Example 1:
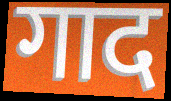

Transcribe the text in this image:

गाद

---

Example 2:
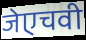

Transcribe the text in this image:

जेएचवी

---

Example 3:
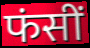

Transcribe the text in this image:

फंसीं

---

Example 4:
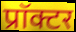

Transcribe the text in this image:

प्रॉक्टर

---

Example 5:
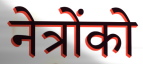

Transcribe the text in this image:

नेत्रोंको